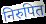
निरुपित